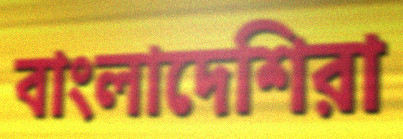
বাংলাদেশিরা